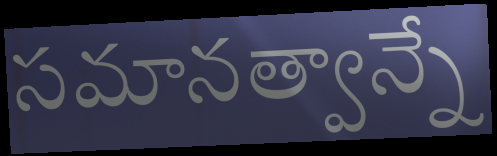
సమానత్వాన్నే